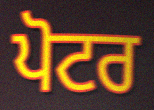
ਪੋਟਰ